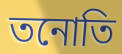
তনোতি